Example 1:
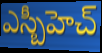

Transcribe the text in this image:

ఎస్బీహెచ్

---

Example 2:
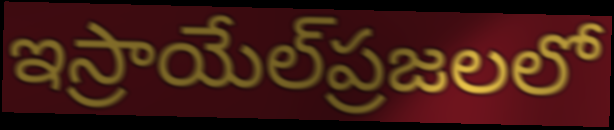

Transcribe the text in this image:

ఇస్రాయేల్‌ప్రజలలో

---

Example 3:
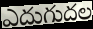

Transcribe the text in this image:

ఎదుగుదల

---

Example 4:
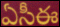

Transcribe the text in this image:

ఏసీఈ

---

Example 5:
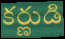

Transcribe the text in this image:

కర్ణుడి